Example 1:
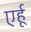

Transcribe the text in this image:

एर्हू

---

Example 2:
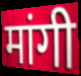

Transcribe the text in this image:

मांगी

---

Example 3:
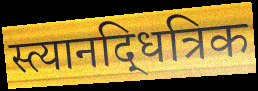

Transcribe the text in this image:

स्त्यानद्धित्रिक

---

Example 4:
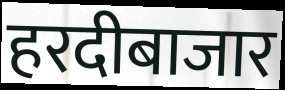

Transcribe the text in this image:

हरदीबाजार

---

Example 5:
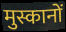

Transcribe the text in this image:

मुस्कानों